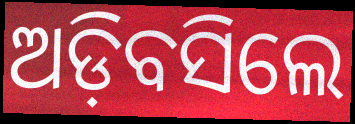
ଅଡ଼ିବସିଲେ